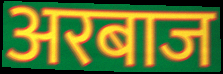
अरबाज